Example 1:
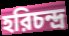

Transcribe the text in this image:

হরিচন্দ্র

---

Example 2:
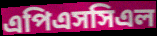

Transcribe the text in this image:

এপিএসসিএল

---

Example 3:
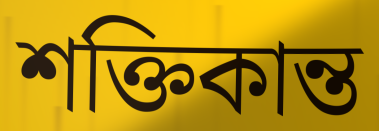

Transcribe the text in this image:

শক্তিকান্ত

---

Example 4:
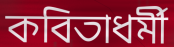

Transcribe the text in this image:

কবিতাধর্মী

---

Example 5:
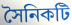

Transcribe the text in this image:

সৈনিকটি